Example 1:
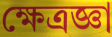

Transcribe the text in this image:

ক্ষেত্রজ্ঞা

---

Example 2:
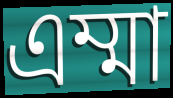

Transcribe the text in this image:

এম্মা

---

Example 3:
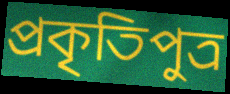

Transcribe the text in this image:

প্রকৃতিপুত্র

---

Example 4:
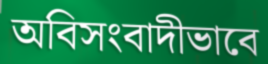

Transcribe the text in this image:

অবিসংবাদীভাবে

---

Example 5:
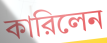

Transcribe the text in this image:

কারিলেন